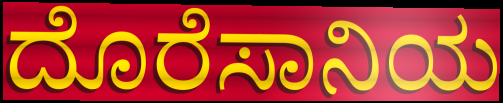
ದೊರೆಸಾನಿಯ